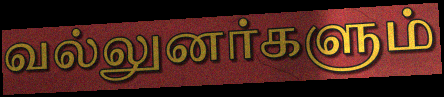
வல்லுனர்களும்